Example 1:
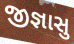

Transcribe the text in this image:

જીજ્ઞાસુ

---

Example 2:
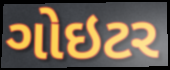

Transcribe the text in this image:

ગોઇટર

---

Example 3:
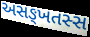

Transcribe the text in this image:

અસઙ્ખતસ્સ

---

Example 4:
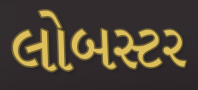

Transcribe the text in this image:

લોબસ્ટર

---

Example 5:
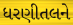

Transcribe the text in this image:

ધરણીતલને